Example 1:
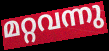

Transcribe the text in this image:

മറ്റവന്നു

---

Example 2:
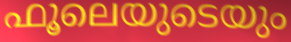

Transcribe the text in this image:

ഫൂലെയുടെയും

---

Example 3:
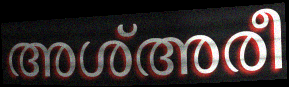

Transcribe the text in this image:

അശ്അരീ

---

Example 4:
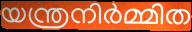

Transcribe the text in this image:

യന്ത്രനിർമ്മിത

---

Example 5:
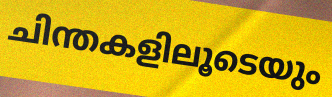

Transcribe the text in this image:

ചിന്തകളിലൂടെയും